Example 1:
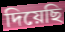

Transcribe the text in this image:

দিয়েছি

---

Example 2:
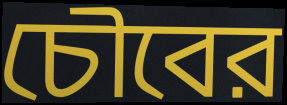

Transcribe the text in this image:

চৌবের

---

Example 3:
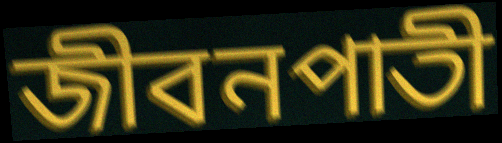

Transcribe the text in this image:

জীবনপাতী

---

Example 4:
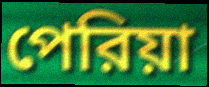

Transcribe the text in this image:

পেরিয়া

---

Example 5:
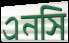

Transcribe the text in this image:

এনসি